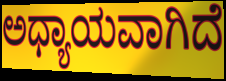
ಅಧ್ಯಾಯವಾಗಿದೆ